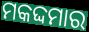
ମକଦ୍ଦମାର